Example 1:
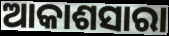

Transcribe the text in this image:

ଆକାଶସାରା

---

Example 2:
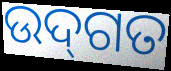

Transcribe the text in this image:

ଉଦ୍‌ଗତ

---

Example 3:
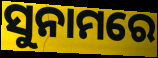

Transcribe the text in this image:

ସୁନାମରେ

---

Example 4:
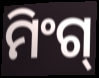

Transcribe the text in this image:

ମିଂଗ୍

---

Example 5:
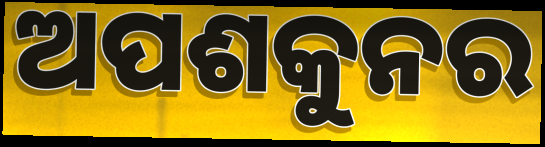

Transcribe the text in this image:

ଅପଶକୁନର